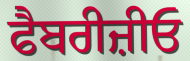
ਫੈਬਰੀਜ਼ੀਓ